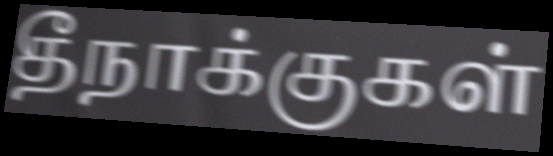
தீநாக்குகள்